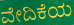
ವೇದಿಕೆಯ